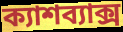
ক্যাশব্যাক্স